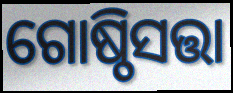
ଗୋଷ୍ଠିସତ୍ତା